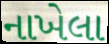
નાખેલા